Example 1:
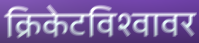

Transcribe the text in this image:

क्रिकेटविश्वावर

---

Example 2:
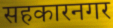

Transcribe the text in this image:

सहकारनगर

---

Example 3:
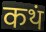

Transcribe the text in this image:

कथं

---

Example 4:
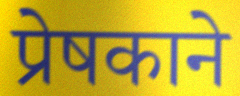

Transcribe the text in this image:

प्रेषकाने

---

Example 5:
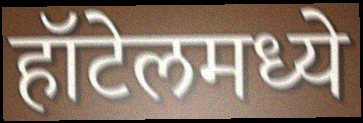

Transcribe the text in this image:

हॉटेलमध्ये